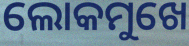
ଲୋକମୁଖେ